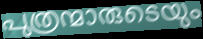
പുത്രന്മാരുടെയും